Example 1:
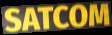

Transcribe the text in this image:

SATCOM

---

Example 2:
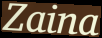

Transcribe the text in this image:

Zaina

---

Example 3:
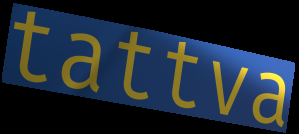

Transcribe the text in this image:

tattva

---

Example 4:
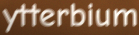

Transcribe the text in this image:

ytterbium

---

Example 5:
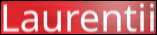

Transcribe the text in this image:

Laurentii